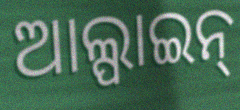
ଆଲ୍ପାଇନ୍